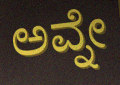
ಅವ್ನೇ